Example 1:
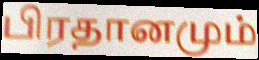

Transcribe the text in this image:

பிரதானமும்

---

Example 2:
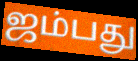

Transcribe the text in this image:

ஜம்பது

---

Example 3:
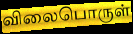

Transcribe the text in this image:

விலைபொருள்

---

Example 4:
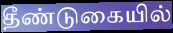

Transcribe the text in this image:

தீண்டுகையில்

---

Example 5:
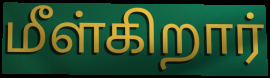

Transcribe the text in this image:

மீள்கிறார்